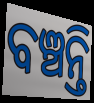
ବଞ୍ଚନ୍ତି